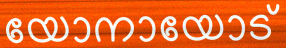
യോനായോട്